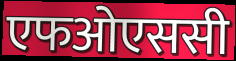
एफओएससी